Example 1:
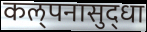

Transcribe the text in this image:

कल्पनासुद्धा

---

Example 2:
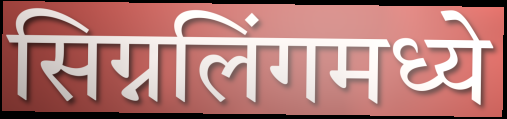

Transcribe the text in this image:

सिग्नलिंगमध्ये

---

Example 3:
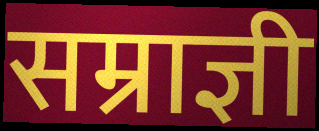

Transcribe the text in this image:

सम्राज्ञी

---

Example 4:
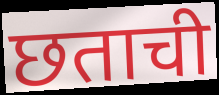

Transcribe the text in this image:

छताची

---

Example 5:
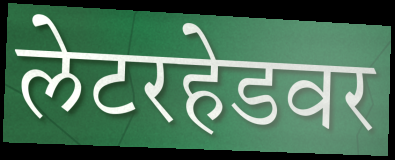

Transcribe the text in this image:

लेटरहेडवर